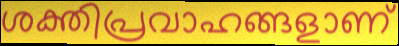
ശക്തിപ്രവാഹങ്ങളാണ്